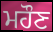
ਮਹੌਣ